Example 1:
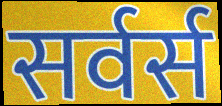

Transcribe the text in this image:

सर्वर्स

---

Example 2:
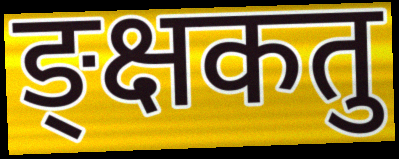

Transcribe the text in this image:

ङ्क्षकतु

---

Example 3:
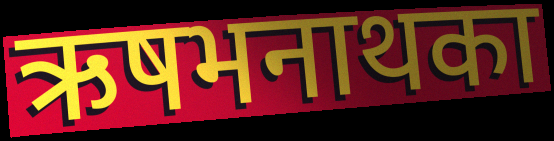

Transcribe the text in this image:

ऋषभनाथका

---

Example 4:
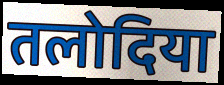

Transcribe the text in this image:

तलोदिया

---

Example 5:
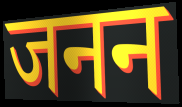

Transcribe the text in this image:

जनन